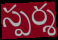
స్పర్శ